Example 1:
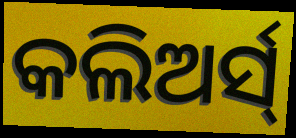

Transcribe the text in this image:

କଲିଅର୍ସ୍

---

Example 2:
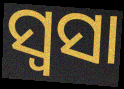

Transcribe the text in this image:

ସ୍ୱସା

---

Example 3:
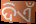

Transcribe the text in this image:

ଦିଏଁ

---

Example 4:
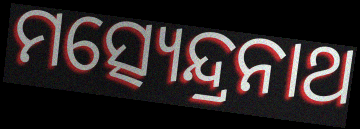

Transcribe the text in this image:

ମତ୍ସ୍ୟେନ୍ଦ୍ରନାଥ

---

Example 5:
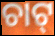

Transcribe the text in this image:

ଚାଟ୍